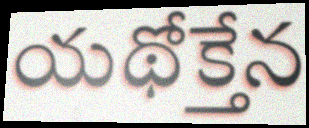
యథోక్తేన